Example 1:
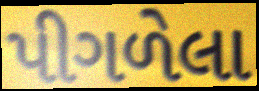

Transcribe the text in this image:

પીગળેલા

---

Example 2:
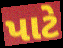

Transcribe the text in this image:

પાટે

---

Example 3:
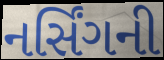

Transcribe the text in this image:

નર્સિંગની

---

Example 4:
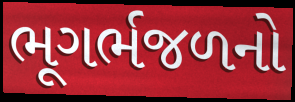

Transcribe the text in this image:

ભૂગર્ભજળનો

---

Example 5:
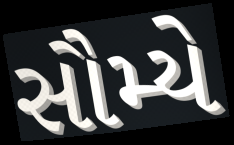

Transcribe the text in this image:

સૌમ્યે